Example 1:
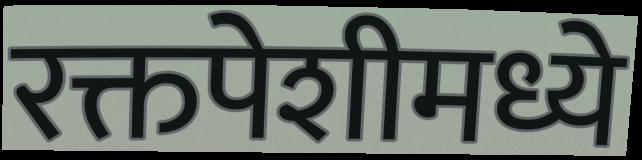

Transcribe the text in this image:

रक्तपेशीमध्ये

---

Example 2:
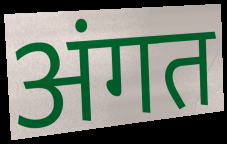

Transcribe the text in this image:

अंगत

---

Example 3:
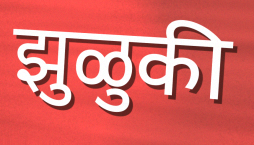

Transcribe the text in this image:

झुळुकी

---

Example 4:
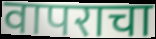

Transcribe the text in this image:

वापराचा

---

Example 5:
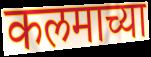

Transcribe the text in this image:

कलमाच्या